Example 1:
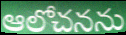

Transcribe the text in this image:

ఆలోచనను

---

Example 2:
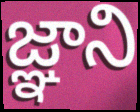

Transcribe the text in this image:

జ్ఞాని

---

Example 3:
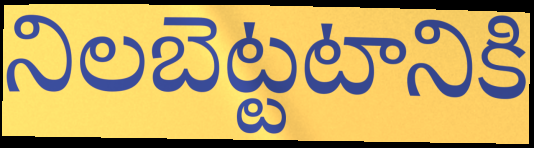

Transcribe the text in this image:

నిలబెట్టటానికి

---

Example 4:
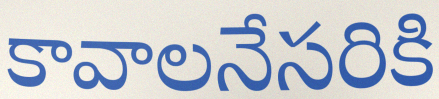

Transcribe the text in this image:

కావాలనేసరికి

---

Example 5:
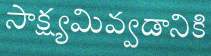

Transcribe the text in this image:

సాక్ష్యమివ్వడానికి